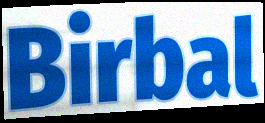
Birbal